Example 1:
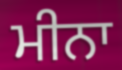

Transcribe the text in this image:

ਮੀਨਾ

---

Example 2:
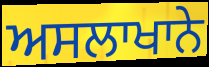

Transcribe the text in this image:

ਅਸਲਾਖਾਨੇ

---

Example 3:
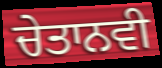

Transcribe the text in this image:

ਚੇਤਾਨਵੀ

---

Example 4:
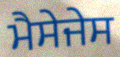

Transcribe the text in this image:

ਮੈਸੇਜੇਸ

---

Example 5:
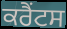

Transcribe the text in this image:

ਕਰੈਂਟਸ